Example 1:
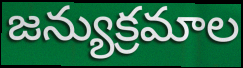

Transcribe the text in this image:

జన్యుక్రమాల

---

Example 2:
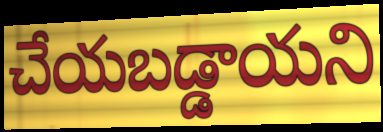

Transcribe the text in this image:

చేయబడ్డాయని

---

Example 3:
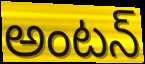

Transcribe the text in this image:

అంటన్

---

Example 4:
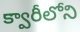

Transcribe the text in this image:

క్వారీలోని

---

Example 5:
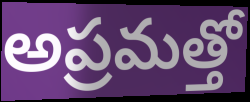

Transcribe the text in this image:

అప్రమత్తో